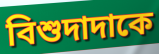
বিশুদাদাকে